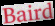
Baird